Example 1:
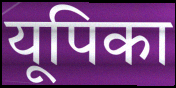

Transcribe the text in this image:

यूपिका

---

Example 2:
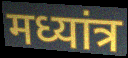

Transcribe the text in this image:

मध्यांत्र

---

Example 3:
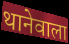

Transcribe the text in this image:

थानेवाला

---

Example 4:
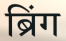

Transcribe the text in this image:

ब्रिंग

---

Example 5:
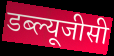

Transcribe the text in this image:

डब्ल्यूजीसी